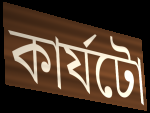
কাৰ্যটো